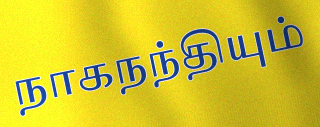
நாகநந்தியும்